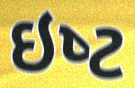
ઇષ્‍ટ